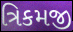
ત્રિકમજી